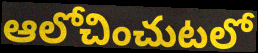
ఆలోచించుటలో